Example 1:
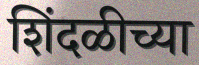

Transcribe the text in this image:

शिंदळीच्या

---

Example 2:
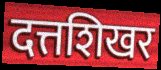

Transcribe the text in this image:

दत्तशिखर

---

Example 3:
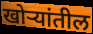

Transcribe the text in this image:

खोऱ्यांतील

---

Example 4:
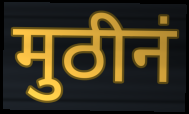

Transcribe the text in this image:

मुठीनं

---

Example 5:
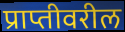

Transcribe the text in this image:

प्राप्तीवरील